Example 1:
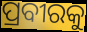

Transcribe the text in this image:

ପ୍ରବୀରକୁ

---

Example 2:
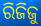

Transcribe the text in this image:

ରିଜିଜୁ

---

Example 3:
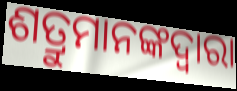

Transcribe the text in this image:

ଶତ୍ରୁମାନଙ୍କଦ୍ଵାରା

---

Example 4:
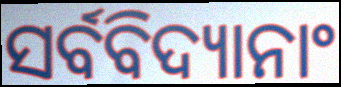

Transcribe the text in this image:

ସର୍ବବିଦ୍ୟାନାଂ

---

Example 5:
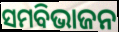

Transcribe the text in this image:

ସମବିଭାଜନ